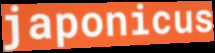
japonicus